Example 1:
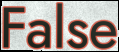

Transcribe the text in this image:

False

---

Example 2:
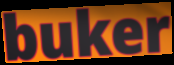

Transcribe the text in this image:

buker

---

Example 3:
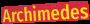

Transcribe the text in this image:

Archimedes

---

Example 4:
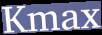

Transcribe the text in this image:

Kmax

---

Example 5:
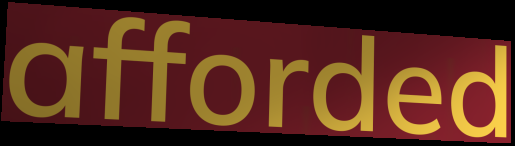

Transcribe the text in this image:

afforded